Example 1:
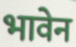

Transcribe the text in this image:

भावेन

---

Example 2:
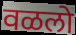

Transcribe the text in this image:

वळलो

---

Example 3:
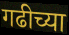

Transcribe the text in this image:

गढीच्या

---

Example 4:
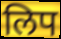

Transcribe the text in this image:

लिप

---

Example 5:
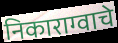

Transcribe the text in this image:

निकाराग्वाचे